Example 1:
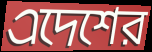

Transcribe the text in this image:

এদেশের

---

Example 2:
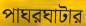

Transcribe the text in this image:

পাঘরঘাটার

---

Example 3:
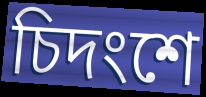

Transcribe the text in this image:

চিদংশে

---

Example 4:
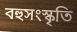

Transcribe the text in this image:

বহুসংস্কৃতি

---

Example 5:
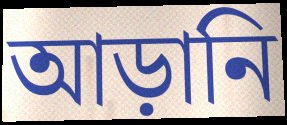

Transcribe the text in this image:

আড়ানি